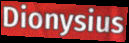
Dionysius